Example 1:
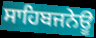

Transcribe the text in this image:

ਸਾਹਿਬਜਨੇਊ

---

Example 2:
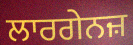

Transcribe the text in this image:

ਲਾਰਗੇਨਜ਼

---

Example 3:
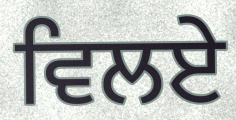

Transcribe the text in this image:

ਵਿਲਏ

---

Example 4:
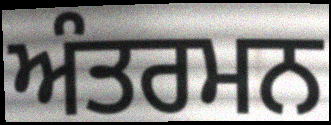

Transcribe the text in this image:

ਅੰਤਰਮਨ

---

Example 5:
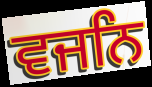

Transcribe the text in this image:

ਵਜਨਿ